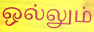
ஒல்லும்